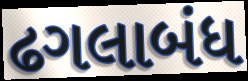
ઢગલાબંધ